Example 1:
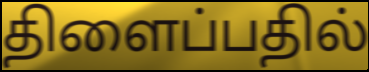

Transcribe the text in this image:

திளைப்பதில்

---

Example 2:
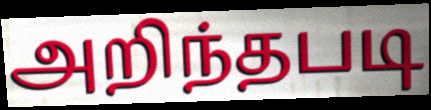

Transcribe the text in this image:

அறிந்தபடி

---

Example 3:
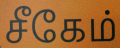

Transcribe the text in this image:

சீகேம்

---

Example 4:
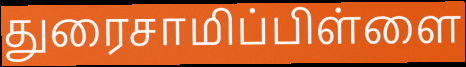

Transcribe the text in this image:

துரைசாமிப்பிள்ளை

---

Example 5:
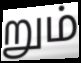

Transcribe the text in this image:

றும்